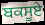
ਬਕਸੂਏ